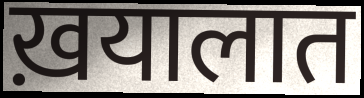
ख़यालात